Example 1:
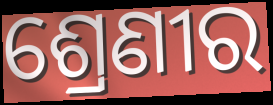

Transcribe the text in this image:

ଶ୍ରେଣୀର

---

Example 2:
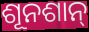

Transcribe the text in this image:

ଶୂନଶାନ୍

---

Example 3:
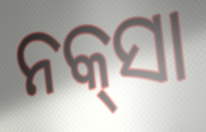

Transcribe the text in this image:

ନକ୍‍ସା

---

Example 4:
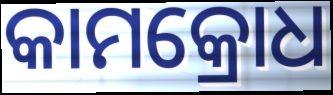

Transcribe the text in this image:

କାମକ୍ରୋଧ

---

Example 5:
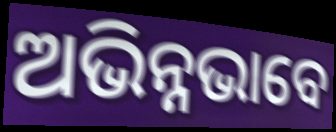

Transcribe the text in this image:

ଅଭିନ୍ନଭାବେ